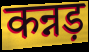
कन्नड़